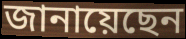
জানায়েছেন